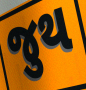
જુથ